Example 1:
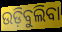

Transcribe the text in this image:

ଉଡ଼ିବୁଲିବା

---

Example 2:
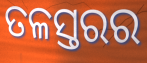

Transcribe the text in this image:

ତଳସ୍ତରର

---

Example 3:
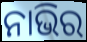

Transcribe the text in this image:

ନାଭିର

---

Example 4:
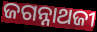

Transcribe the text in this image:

ଜଗନ୍ନାଥଜୀ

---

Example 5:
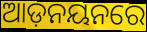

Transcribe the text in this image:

ଆଡ଼ନୟନରେ